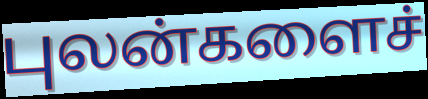
புலன்களைச்